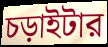
চড়াইটার